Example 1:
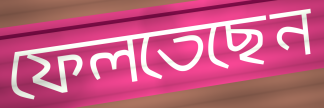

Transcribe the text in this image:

ফেলতেছেন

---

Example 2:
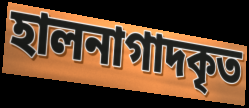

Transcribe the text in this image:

হালনাগাদকৃত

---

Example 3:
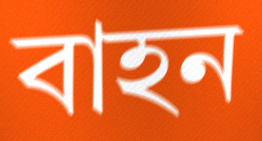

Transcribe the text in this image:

বাহন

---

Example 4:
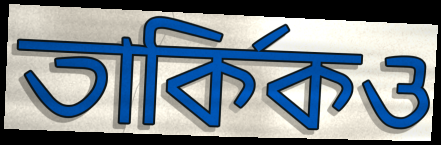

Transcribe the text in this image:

তার্কিকও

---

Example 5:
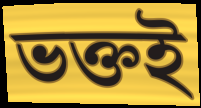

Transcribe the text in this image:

ভক্তই